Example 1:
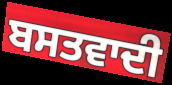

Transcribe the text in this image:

ਬਸਤਵਾਦੀ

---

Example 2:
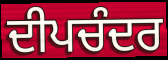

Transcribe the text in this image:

ਦੀਪਚੰਦਰ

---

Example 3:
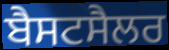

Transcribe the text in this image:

ਬੈਸਟਸੈਲਰ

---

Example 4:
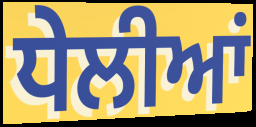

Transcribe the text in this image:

ਧੇਲੀਆਂ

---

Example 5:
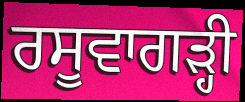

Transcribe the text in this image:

ਰਸੂਵਾਗੜ੍ਹੀ